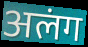
अलंग